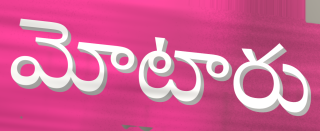
మోటారు